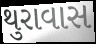
થુરાવાસ